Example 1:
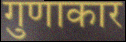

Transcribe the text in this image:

गुणाकार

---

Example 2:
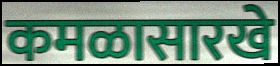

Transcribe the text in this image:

कमळासारखे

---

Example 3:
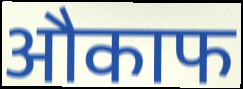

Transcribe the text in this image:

औकाफ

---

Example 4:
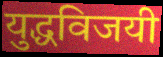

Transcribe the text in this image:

युद्धविजयी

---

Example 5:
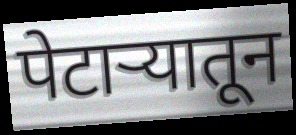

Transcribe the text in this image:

पेटाऱ्यातून